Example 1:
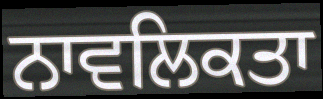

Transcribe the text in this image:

ਨਾਵਲਿਕਤਾ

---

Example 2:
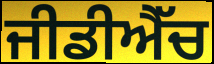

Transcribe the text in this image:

ਜੀਡੀਐੱਚ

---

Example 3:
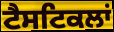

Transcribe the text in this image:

ਟੈਸਟਿਕਲਾਂ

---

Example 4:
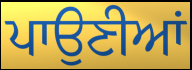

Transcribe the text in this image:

ਪਾਉਣੀਆਂ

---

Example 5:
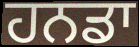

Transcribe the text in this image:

ਹਨਡਾ